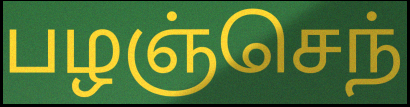
பழஞ்செந்